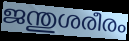
ജന്തുശരീരം